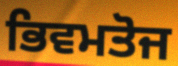
ਭਿਵਮਤੋਜ